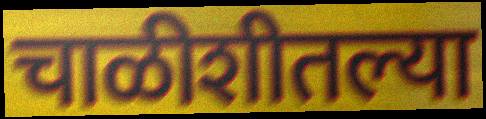
चाळीशीतल्या